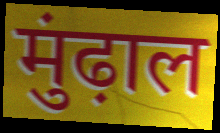
मुंढ़ाल